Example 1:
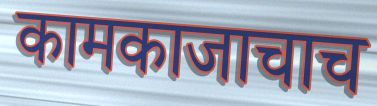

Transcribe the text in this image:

कामकाजाचाच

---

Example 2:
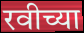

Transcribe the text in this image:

रवीच्या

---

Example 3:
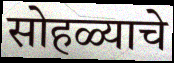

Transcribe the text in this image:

सोहळ्याचे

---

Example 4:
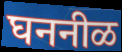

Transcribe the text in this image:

घननीळ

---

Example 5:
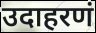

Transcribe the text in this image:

उदाहरणं